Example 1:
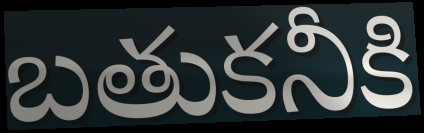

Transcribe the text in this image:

బతుకనీకి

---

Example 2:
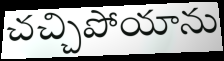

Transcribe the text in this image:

చచ్చిపోయాను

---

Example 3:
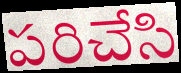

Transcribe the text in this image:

పరిచేసి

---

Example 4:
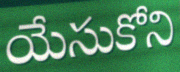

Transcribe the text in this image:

యేసుకోని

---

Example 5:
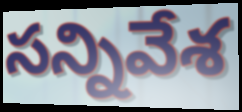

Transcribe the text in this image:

సన్నివేశ